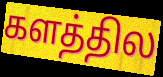
களத்தில